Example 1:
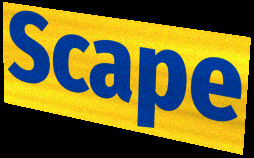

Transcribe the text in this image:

Scape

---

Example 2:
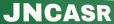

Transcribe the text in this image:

JNCASR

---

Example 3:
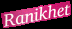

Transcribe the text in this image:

Ranikhet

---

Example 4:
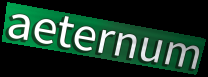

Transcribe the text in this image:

aeternum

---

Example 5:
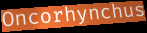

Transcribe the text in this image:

Oncorhynchus